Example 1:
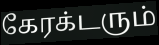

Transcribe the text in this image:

கேரக்டரும்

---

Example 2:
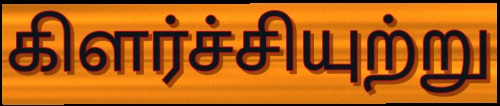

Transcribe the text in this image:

கிளர்ச்சியுற்று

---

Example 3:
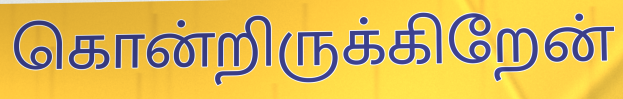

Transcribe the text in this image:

கொன்றிருக்கிறேன்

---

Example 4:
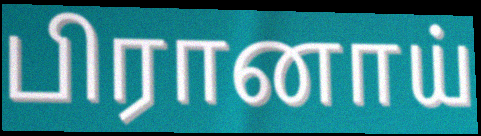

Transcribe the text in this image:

பிரானாய்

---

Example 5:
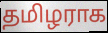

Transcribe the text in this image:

தமிழராக